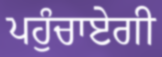
ਪਹੁੰਚਾਏਗੀ